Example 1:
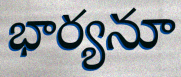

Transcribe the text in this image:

భార్యనూ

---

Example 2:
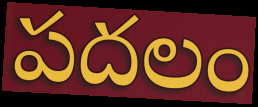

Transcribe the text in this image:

పదలం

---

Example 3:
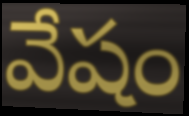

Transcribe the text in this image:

వేషం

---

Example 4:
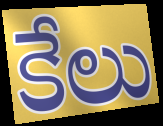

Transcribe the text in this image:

కేలు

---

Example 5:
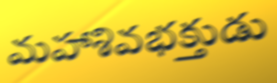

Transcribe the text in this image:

మహాశివభక్తుడు